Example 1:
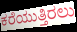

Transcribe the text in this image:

ಕರೆಯುತ್ತಿರಲು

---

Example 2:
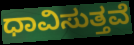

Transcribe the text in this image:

ಧಾವಿಸುತ್ತವೆ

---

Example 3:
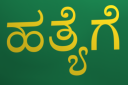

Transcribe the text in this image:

ಹತ್ಯೆಗೆ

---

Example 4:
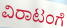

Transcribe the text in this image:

ವಿರಾಟಂಗೆ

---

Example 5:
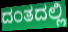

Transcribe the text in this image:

ದಂತದಲ್ಲಿ